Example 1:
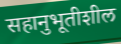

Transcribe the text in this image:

सहानुभूतीशील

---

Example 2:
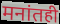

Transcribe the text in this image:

मनांतही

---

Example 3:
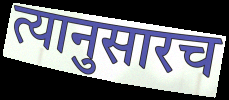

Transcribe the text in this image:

त्यानुसारच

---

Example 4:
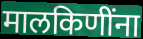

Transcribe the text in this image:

मालकिणींना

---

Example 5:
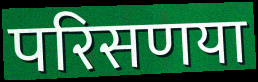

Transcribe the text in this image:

परिसणया